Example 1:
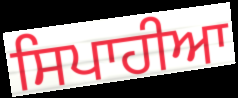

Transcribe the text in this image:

ਸਿਪਾਹੀਆ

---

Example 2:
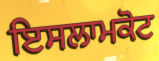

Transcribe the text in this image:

ਇਸਲਾਮਕੋਟ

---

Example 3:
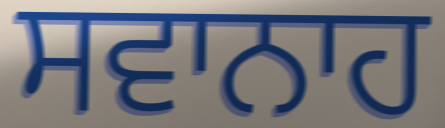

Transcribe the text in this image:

ਸਵਾਨਾਹ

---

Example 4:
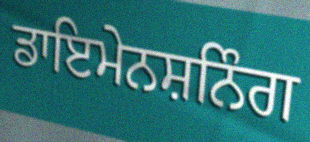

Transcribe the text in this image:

ਡਾਇਮੇਨਸ਼ਨਿੰਗ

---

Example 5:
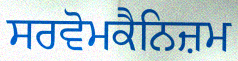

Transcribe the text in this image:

ਸਰਵੋਮਕੈਨਿਜ਼ਮ